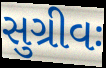
સુગ્રીવઃ